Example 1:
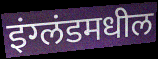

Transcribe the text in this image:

इंग्‍लंडमधील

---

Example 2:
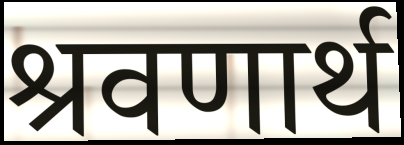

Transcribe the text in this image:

श्रवणार्थ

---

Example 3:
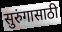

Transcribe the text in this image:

सुरुंगासाठी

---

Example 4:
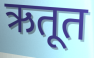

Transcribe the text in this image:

ऋतूत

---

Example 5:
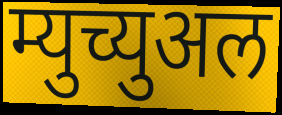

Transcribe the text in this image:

म्युच्युअल